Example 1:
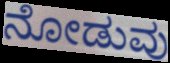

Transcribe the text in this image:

ನೋಡುವು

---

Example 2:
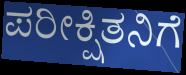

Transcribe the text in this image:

ಪರೀಕ್ಷಿತನಿಗೆ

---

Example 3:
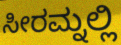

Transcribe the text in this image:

ಸೀರಮ್ನಲ್ಲಿ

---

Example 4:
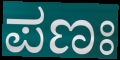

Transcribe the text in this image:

ಪಣಃ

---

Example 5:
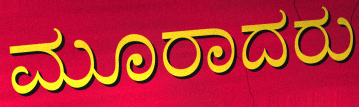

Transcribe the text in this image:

ಮೂರಾದರು